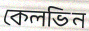
কেলভিন